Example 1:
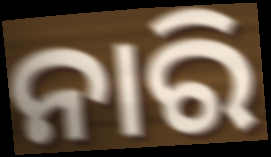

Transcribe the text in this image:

ନାରି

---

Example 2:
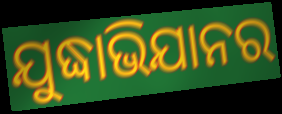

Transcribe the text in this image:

ଯୁଦ୍ଧାଭିଯାନର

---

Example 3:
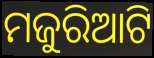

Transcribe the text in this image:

ମଜୁରିଆଟି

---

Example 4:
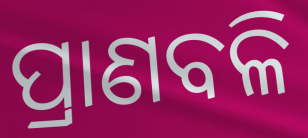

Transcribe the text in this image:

ପ୍ରାଣବଳି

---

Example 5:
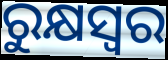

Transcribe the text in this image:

ରୁକ୍ଷସ୍ୱର